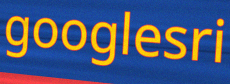
googlesri